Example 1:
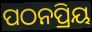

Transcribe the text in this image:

ପଠନପ୍ରିୟ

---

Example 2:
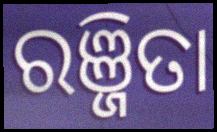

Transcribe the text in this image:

ରଞ୍ଜିତା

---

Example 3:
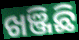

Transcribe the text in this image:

ଖଞ୍ଜିଛି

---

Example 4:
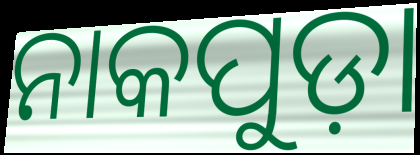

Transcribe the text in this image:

ନାକପୁଡ଼ା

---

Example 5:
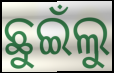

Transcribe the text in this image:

ଛୁଇଁଲୁ